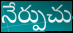
నేర్పుచు